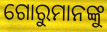
ଗୋରୁମାନଙ୍କୁ